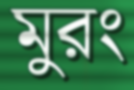
মুরং